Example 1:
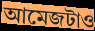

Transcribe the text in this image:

আমেজটাও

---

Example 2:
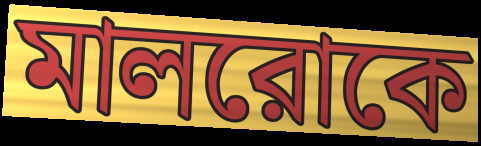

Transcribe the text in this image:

মালরোকে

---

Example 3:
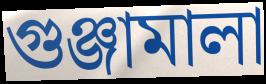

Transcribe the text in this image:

গুঞ্জামালা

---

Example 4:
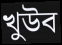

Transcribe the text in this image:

খুউব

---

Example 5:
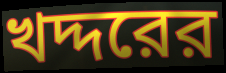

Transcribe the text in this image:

খদ্দরের